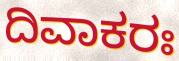
ದಿವಾಕರಃ